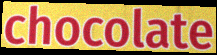
chocolate